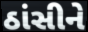
ઠાંસીને